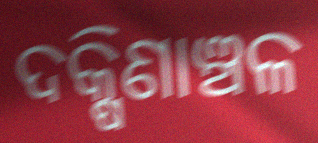
ଦକ୍ଷିଣାଞ୍ଚଳ